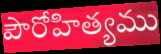
పౌరోహిత్యము